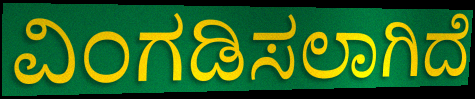
ವಿಂಗಡಿಸಲಾಗಿದೆ